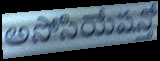
అసోసియేషన్తో